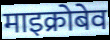
माइक्रोबेव